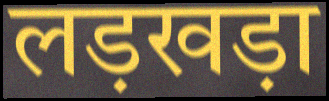
लड़खड़ा